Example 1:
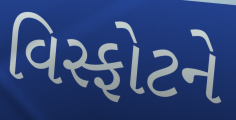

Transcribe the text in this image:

વિસ્ફોટને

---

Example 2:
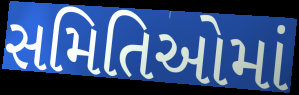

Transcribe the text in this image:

સમિતિઓમાં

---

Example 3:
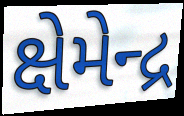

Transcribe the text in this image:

ક્ષેમેન્દ્ર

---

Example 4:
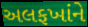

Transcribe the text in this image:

અલફખાંને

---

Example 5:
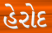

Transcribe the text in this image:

હેરોદ